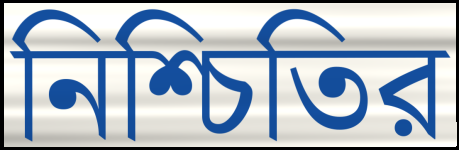
নিশ্চিতির